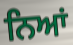
ਨਿਆਂ